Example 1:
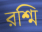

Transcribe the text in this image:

রশ্মি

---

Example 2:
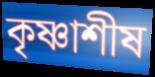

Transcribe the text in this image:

কৃষ্ণাশীষ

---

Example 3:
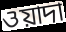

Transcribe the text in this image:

ওয়াদা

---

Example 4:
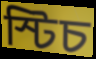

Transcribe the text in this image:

স্টিচ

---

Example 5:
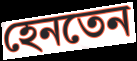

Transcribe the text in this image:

হেনতেন